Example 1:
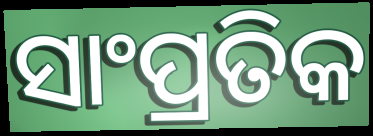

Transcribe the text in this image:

ସାଂପ୍ରତିକ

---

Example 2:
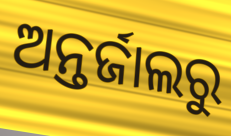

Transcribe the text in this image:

ଅନ୍ତର୍ଜାଲରୁ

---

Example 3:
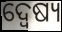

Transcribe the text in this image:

ଦ୍ୱେଷ୍ୟ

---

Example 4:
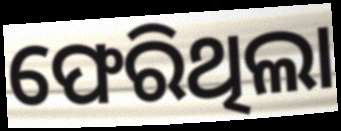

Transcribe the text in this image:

ଫେରିଥିଲା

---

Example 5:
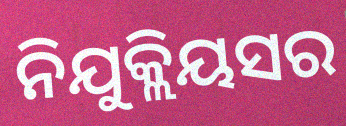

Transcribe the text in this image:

ନିଯୁକ୍ଲିୟସର